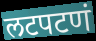
लटपटणं